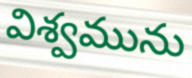
విశ్వమును